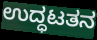
ಉದ್ಧಟತನ